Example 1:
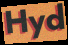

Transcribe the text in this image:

Hyd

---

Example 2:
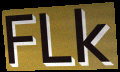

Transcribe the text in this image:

FLk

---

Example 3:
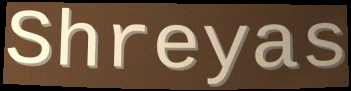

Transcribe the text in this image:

Shreyas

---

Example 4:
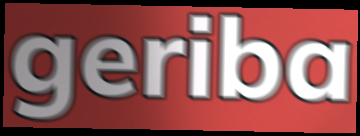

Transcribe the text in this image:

geriba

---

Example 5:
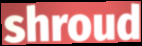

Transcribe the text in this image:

shroud